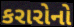
કરારોનો